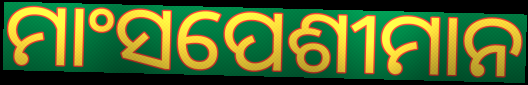
ମାଂସପେଶୀମାନ